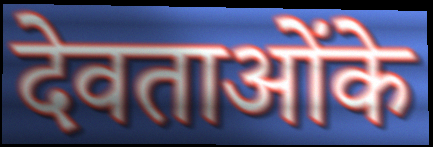
देवताओंके